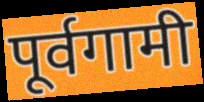
पूर्वगामी